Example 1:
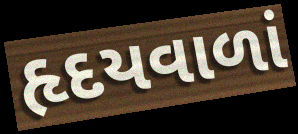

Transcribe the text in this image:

હૃદયવાળાં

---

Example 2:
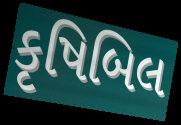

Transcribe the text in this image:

કૃષિબિલ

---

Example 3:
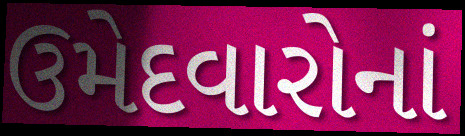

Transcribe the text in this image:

ઉમેદવારોનાં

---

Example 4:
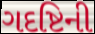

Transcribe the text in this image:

ગદષ્ટિની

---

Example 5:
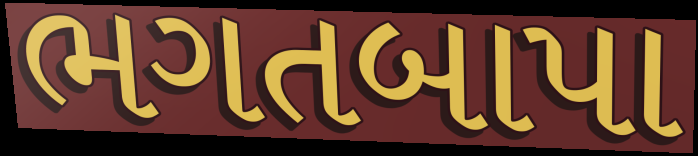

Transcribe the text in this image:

ભગતબાપા